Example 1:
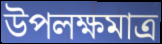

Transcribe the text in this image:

উপলক্ষমাত্র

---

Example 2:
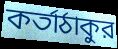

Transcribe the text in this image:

কর্তাঠাকুর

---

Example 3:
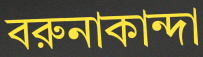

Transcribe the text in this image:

বরুনাকান্দা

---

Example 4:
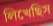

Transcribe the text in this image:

লিখেছিস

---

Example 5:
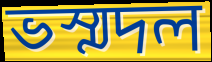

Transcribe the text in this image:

ভস্মদল